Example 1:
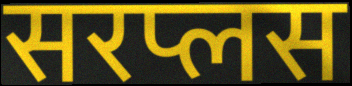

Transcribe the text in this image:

सरप्लस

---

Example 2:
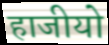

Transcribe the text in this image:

हाजीयो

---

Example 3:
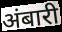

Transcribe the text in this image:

अंबारी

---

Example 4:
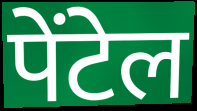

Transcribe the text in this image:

पेंटेल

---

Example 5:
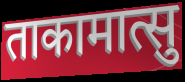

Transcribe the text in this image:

ताकामात्सु